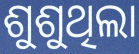
ଶୁଶୁଥିଲା